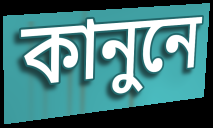
কানুনে